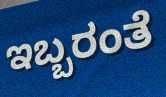
ಇಬ್ಬರಂತೆ